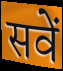
सवें